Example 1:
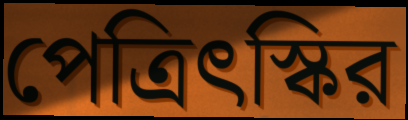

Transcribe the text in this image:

পেত্রিৎস্কির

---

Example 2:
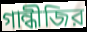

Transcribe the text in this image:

গান্ধীজির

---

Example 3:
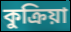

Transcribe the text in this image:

কুক্রিয়া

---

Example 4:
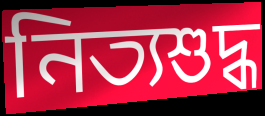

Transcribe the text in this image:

নিত্যশুদ্ধ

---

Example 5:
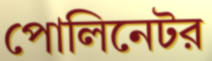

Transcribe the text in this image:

পোলিনেটর